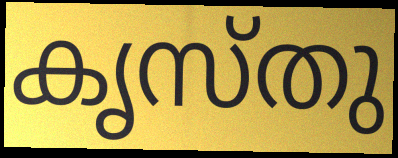
കൃസ്തു